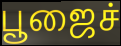
பூஜைச்